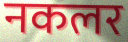
नकलर